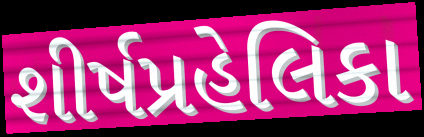
શીર્ષપ્રહેલિકા